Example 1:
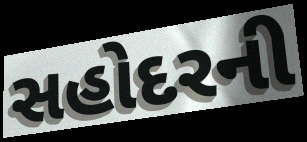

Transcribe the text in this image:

સહોદરની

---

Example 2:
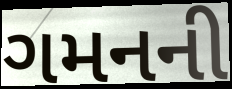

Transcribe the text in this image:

ગમનની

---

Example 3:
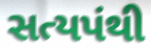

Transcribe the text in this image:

સત્યપંથી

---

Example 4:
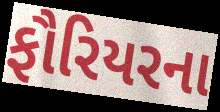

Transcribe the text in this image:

ફૌરિયરના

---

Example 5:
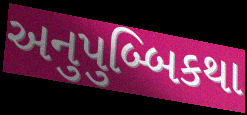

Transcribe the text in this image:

અનુપુબ્બિકથા